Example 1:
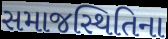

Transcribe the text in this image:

સમાજસ્થિતિના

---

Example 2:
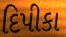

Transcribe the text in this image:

દિપીકા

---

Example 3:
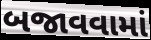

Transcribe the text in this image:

બજાવવામાં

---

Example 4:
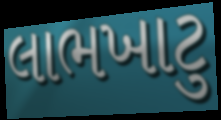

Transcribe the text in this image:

લાભખાટુ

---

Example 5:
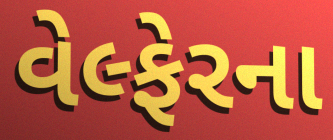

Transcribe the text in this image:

વેલ્ફેરના